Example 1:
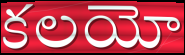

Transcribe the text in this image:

కలయో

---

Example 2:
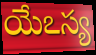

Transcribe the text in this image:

యేఽస్య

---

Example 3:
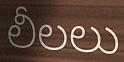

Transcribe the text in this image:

లీలలు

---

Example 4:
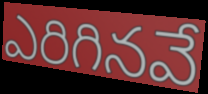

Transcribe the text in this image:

ఎరిగినవే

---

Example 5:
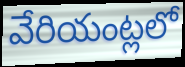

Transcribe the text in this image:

వేరియంట్లలో